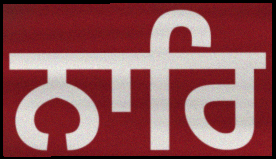
ਨਾਰਿ